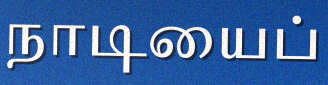
நாடியைப்